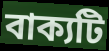
বাক্যটি